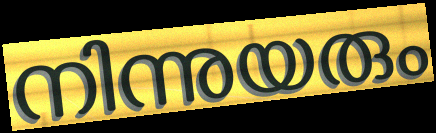
നിന്നുയരും